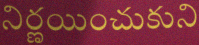
నిర్ణయించుకుని